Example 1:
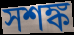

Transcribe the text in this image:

সশঙ্ক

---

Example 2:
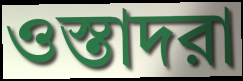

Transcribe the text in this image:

ওস্তাদরা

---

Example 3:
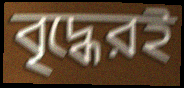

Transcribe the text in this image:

বৃদ্ধেরই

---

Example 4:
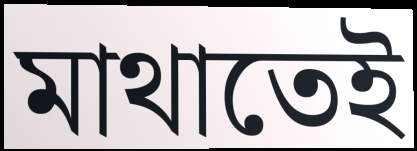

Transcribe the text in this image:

মাথাতেই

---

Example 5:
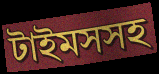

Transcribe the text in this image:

টাইমসসহ